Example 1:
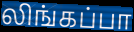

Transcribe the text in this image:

லிங்கப்பா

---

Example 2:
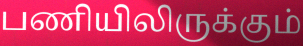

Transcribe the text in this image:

பணியிலிருக்கும்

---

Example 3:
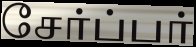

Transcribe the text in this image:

சேர்ப்பர்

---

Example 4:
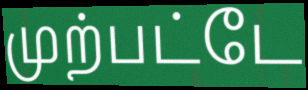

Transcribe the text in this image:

முற்பட்டே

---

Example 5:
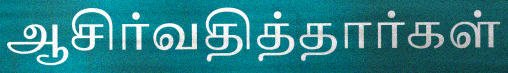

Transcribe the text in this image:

ஆசிர்வதித்தார்கள்